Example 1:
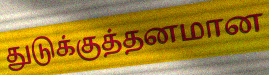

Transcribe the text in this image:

துடுக்குத்தனமான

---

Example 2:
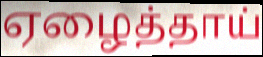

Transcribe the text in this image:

ஏழைத்தாய்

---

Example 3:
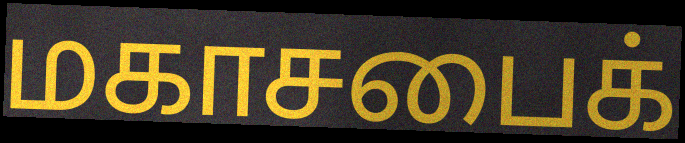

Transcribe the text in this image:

மகாசபைக்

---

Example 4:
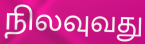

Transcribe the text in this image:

நிலவுவது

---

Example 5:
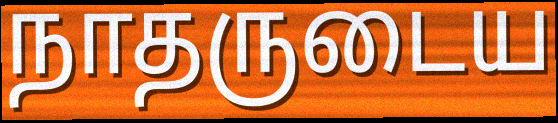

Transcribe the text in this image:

நாதருடைய